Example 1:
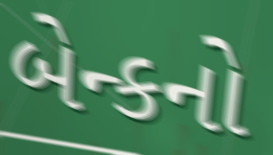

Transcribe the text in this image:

બેન્કનો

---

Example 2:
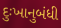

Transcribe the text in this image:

દુઃખાનુબંધી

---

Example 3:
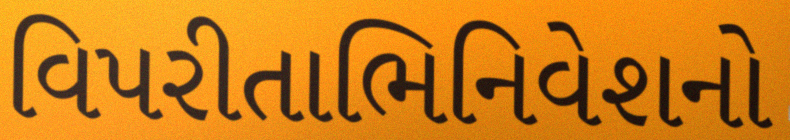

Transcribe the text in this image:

વિપરીતાભિનિવેશનો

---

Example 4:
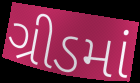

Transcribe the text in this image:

ગ્રીડમાં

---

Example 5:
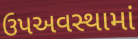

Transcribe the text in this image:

ઉપઅવસ્થામાં